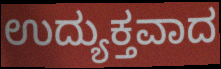
ಉದ್ಯುಕ್ತವಾದ